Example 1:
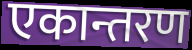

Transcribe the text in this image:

एकान्तरण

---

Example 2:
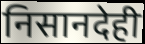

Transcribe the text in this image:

निसानदेही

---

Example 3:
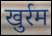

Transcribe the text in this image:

खुर्रम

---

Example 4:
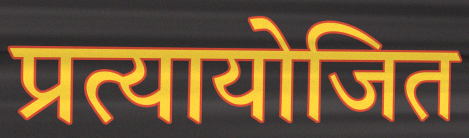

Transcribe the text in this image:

प्रत्यायोजित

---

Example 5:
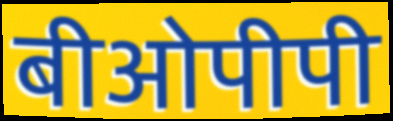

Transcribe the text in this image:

बीओपीपी